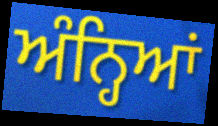
ਅੰਨ੍ਹਿਆਂ